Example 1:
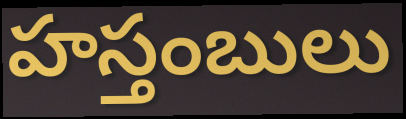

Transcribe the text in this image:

హస్తంబులు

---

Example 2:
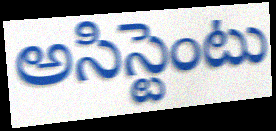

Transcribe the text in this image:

అసిస్టెంటు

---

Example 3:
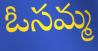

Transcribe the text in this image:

ఓసమ్మ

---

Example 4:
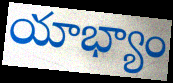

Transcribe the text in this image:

యాభ్యాం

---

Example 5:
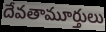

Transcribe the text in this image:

దేవతామూర్తులు